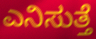
ಎನಿಸುತ್ತೆ